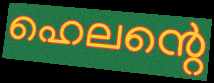
ഹെലന്റെ